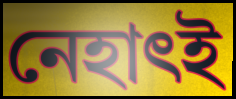
নেহাৎই